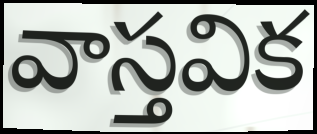
వాస్తవిక